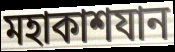
মহাকাশযান